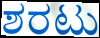
ಶರಟು